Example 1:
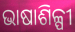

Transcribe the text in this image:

ଭାଷାଶିଳ୍ପୀ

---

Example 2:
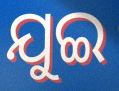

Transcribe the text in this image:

ଯୁଇ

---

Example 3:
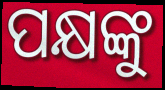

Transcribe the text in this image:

ପକ୍ଷଙ୍କୁ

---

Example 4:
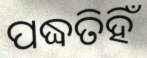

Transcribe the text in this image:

ପଦ୍ଧତିହିଁ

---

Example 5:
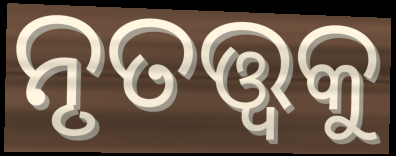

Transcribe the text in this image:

ନୃତତ୍ତ୍ଵକୁ